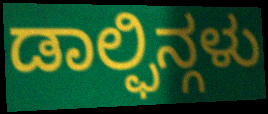
ಡಾಲ್ಫಿನ್ಗಳು